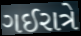
ગઈરાત્રે